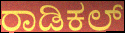
ರಾಡಿಕಲ್